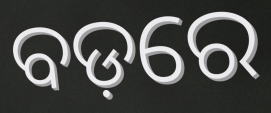
ବଡ଼ରେ